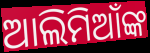
ଆଲିମିଆଁଙ୍କ